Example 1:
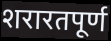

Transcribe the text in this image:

शरारतपूर्ण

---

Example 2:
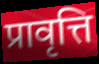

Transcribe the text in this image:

प्रावृत्ति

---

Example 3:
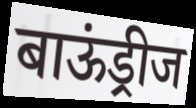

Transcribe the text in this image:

बाऊंड्रीज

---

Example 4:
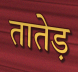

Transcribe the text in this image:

तातेड़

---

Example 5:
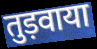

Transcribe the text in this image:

तुड़वाया